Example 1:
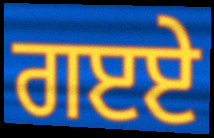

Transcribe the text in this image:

ਗੲਏ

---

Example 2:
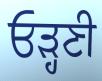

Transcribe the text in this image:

ਓੜ੍ਹਣੀ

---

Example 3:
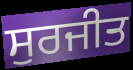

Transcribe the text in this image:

ਸੁਰਜੀਤ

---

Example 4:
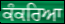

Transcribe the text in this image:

ਕੰਕਰਿਆ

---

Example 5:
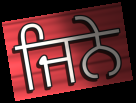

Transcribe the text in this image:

ਜਿਨੇ